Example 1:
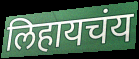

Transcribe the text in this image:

लिहायचंय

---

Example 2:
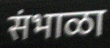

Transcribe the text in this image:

संभाळा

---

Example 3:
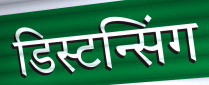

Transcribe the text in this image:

डिस्टन्सिंग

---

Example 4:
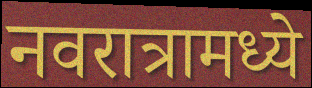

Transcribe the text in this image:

नवरात्रामध्ये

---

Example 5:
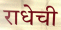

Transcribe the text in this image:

राधेची